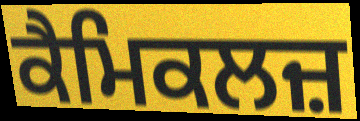
ਕੈਮਿਕਲਜ਼